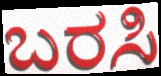
ಬರಸಿ